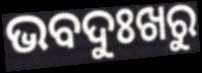
ଭବଦୁଃଖରୁ